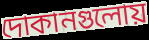
দোকানগুলোয়